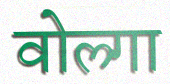
वोल्गा